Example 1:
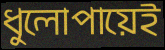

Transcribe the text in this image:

ধুলোপায়েই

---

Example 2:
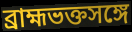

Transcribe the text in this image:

ব্রাহ্মভক্তসঙ্গে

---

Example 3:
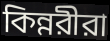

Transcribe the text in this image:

কিন্নরীরা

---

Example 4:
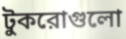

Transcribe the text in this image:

টুকরোগুলো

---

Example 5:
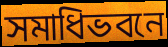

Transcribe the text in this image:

সমাধিভবনে